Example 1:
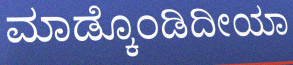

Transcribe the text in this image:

ಮಾಡ್ಕೊಂಡಿದೀಯಾ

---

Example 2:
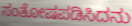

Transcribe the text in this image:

ಸಂತೋಷಪಡಿಸಿದನು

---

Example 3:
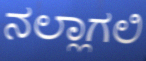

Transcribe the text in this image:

ನಲ್ಲಾಗಲಿ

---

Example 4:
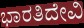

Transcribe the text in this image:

ಭಾರತಿದೇವಿ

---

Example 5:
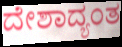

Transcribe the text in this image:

ದೇಶಾದ್ಯಂತ